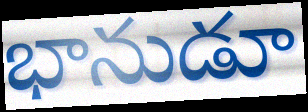
భానుడూ